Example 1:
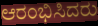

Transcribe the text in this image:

ಆರಂಭಿಸಿದರು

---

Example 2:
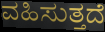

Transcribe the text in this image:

ವಹಿಸುತ್ತದೆ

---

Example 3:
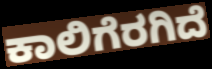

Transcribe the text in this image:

ಕಾಲಿಗೆರಗಿದೆ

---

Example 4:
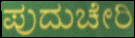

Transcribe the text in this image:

ಪುದುಚೇರಿ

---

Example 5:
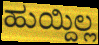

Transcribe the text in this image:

ಹುಯ್ದಿಲ್ಲ